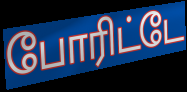
போரிட்டே